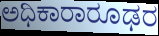
ಅಧಿಕಾರಾರೂಢರ